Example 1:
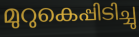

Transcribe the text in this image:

മുറുകെപ്പിടിച്ചു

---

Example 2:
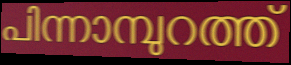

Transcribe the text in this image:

പിന്നാമ്പുറത്ത്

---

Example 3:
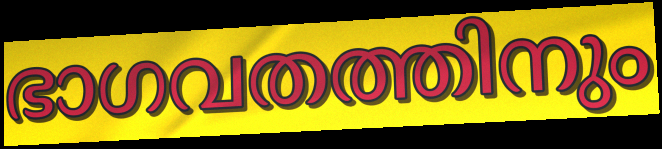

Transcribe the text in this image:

ഭാഗവതത്തിനും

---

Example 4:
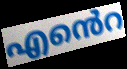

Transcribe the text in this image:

എൻെറ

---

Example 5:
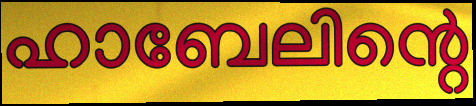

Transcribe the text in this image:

ഹാബേലിന്റെ